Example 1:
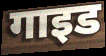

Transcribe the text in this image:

गाइड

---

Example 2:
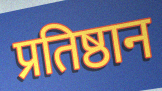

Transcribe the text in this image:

प्रतिष्ठान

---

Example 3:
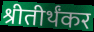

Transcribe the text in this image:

श्रीतीर्थंकर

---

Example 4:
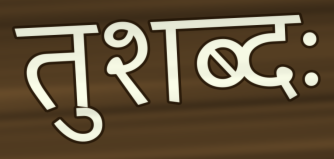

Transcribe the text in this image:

तुशब्दः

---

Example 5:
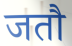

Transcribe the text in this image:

जतौ